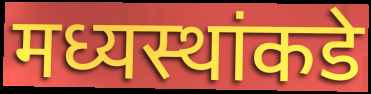
मध्यस्थांकडे